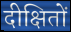
दीक्षितों